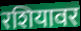
रशियावर